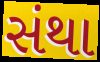
સંથા